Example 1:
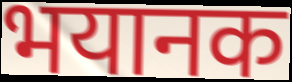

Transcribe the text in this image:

भयानक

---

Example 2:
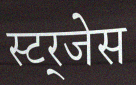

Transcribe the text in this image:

स्टर्जेस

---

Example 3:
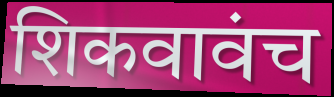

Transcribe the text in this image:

शिकवावंच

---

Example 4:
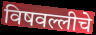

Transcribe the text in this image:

विषवल्लीचे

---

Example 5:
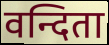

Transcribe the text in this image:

वन्दिता